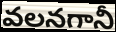
వలనగానీ